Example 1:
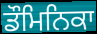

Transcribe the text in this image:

ਡੌਮਿਨਿਕਾ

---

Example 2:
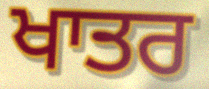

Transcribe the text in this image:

ਖਾਤਰ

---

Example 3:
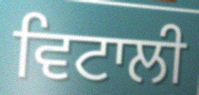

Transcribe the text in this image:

ਵਿਟਾਲੀ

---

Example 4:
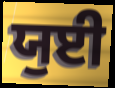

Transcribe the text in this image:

ਯੁਈ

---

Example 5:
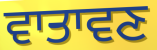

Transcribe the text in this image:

ਵਾਤਾਵਣ